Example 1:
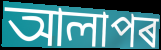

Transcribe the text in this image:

আলাপৰ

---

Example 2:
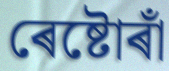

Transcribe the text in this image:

ৰেষ্টোৰাঁ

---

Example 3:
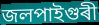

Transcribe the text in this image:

জলপাইগুৰী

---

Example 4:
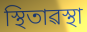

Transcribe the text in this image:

স্থিতাৱস্থা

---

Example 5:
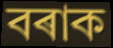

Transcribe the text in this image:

বৰাক